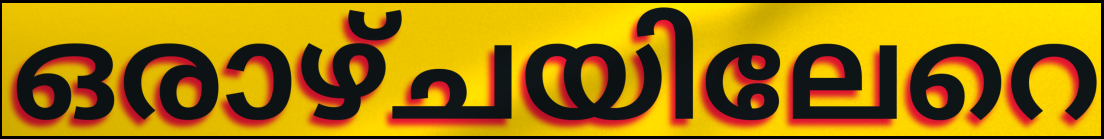
ഒരാഴ്ചയിലേറെ